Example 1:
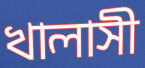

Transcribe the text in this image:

খালাসী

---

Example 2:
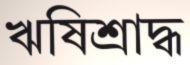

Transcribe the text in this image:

ঋষিশ্রাদ্ধ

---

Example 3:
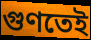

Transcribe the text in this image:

গুণতেই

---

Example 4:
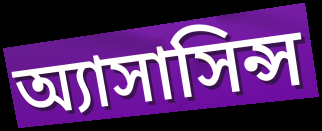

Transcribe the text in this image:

অ্যাসাসিন্স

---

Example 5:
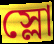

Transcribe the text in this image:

স্লো